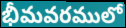
భీమవరములో